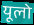
यूलो